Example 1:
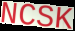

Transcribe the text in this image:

NCSK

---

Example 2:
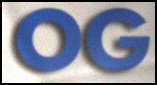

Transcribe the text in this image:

OG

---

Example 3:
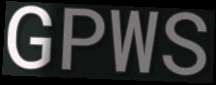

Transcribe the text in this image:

GPWS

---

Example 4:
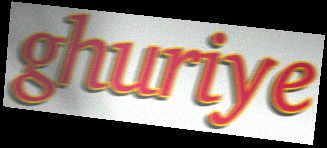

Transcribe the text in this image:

ghuriye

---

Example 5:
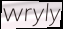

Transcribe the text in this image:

wryly